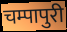
चम्पापुरी